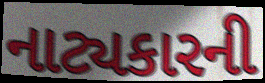
નાટ્યકારની